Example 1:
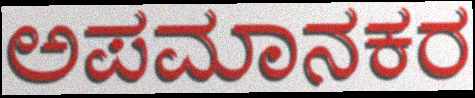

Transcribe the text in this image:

ಅಪಮಾನಕರ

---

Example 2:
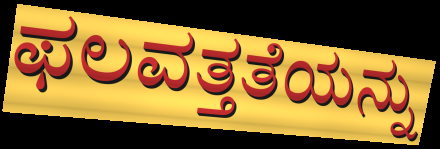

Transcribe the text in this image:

ಫಲವತ್ತತೆಯನ್ನು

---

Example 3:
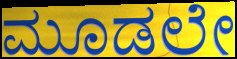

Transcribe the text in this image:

ಮೂಡಲೇ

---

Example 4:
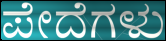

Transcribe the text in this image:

ಪೇದೆಗಳು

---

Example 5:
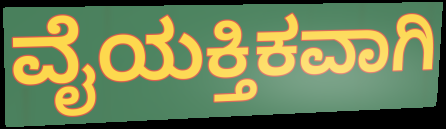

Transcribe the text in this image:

ವೈಯಕ್ತಿಕವಾಗಿ